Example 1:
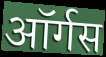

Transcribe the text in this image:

ऑर्गस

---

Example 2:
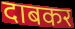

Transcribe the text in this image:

दाबकर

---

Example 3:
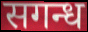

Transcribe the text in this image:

सगन्ध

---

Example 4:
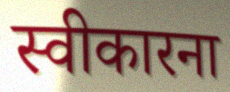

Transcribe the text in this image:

स्वीकारना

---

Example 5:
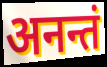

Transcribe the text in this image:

अनन्तं